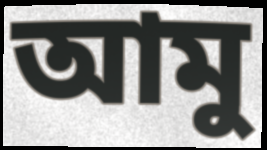
আমু